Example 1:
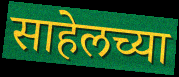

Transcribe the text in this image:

साहेलच्या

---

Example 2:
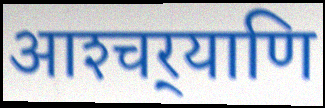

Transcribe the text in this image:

आश्चर्याणि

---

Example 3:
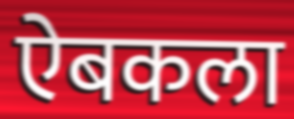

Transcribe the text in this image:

ऐबकला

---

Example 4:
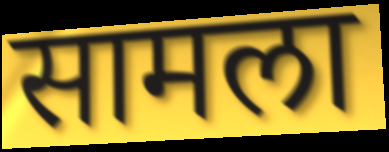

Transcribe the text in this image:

सामला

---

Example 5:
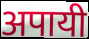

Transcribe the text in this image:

अपायी